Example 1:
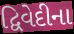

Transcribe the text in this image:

દ્વિવેદીના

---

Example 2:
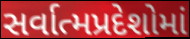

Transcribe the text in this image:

સર્વાત્મપ્રદેશોમાં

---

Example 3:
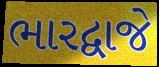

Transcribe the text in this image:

ભારદ્વાજે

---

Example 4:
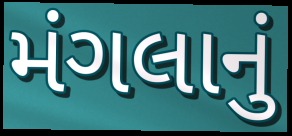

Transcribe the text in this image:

મંગલાનું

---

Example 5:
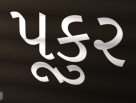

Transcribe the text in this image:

પૂકુર